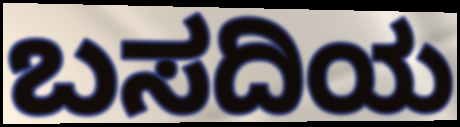
ಬಸದಿಯ